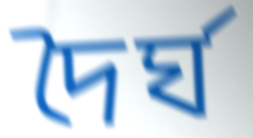
দৈৰ্ঘ